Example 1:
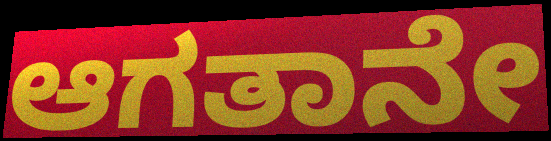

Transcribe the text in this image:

ಆಗತಾನೇ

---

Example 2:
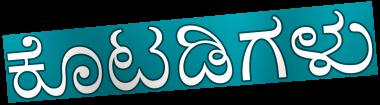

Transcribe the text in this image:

ಕೊಟಡಿಗಳು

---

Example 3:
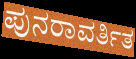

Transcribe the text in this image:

ಪುನರಾವರ್ತಿತ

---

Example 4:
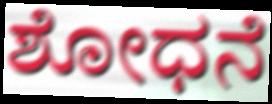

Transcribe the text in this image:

ಶೋಧನೆ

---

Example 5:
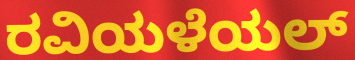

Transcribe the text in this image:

ರವಿಯಳೆಯಲ್